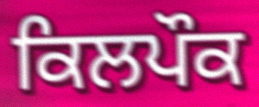
ਕਿਲਪੌਕ